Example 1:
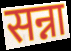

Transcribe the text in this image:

सन्ना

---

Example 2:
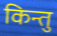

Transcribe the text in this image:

किन्‍तु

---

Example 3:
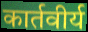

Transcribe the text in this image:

कार्तवीर्य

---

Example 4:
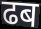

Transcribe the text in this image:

ढब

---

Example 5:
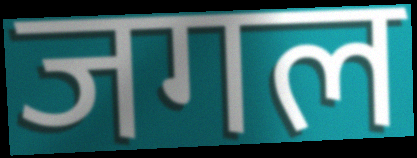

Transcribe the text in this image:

जगल